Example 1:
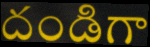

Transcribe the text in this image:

దండిగా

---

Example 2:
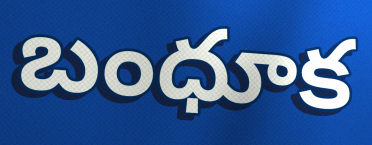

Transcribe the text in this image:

బంధూక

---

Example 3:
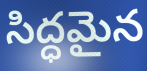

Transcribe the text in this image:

సిద్ధమైన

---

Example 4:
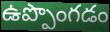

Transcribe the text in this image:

ఉప్పొంగడం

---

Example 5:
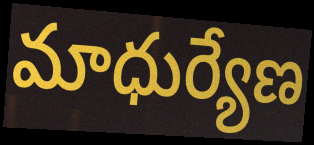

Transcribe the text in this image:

మాధుర్యేణ